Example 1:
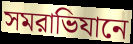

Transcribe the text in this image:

সমরাভিযানে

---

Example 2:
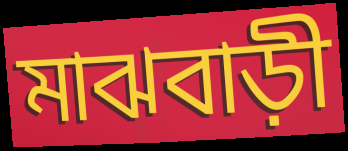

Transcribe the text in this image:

মাঝবাড়ী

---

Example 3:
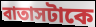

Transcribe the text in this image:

বাতাসটাকে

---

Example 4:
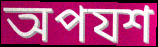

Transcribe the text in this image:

অপযশ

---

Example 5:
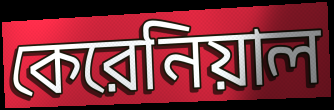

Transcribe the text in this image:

কেরেনিয়াল